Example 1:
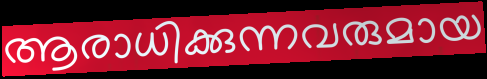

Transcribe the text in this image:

ആരാധിക്കുന്നവരുമായ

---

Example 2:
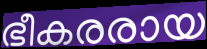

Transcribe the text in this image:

ഭീകരരായ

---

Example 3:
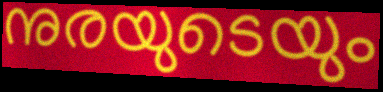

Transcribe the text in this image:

നുരയുടെയും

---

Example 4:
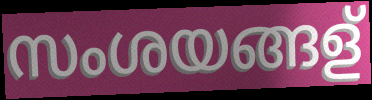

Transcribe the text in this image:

സംശയങ്ങള്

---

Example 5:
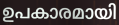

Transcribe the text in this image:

ഉപകാരമായി